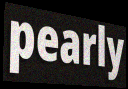
pearly